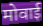
मोवाई